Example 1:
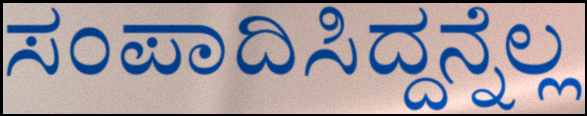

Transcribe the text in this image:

ಸಂಪಾದಿಸಿದ್ದನ್ನೆಲ್ಲ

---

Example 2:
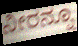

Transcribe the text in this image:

ನೀರನ್ನೂ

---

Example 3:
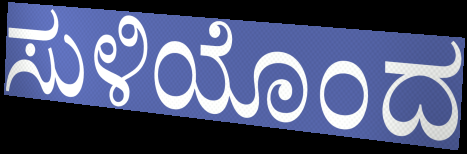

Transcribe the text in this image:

ಸುಳಿಯೊಂದ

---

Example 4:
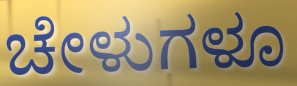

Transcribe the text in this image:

ಚೇಳುಗಳೂ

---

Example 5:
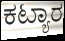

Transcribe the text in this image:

ಕಟ್ಯಾರ